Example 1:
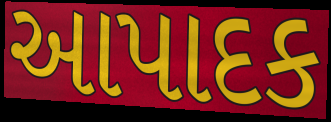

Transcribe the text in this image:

આપાદક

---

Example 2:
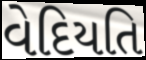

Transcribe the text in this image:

વેદિયતિ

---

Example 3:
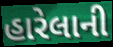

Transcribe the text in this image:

હારેલાની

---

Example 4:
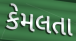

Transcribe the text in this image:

કેમલતા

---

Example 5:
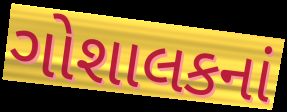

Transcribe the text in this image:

ગોશાલકનાં